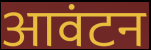
आवंटन